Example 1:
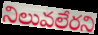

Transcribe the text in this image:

నిలువలేరని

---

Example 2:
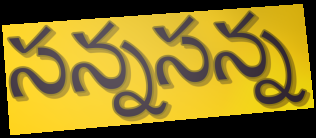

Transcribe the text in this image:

సన్నసన్న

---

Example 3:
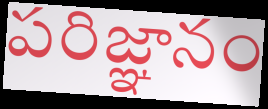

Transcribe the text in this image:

పరిజ్ఞానం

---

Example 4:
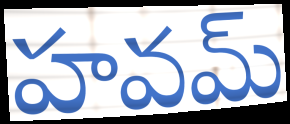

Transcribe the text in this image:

హవమ్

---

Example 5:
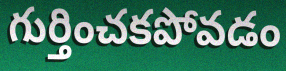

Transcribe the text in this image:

గుర్తించకపోవడం